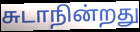
சுடாநின்றது